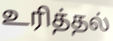
உரித்தல்